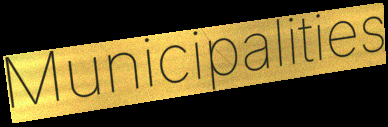
Municipalities